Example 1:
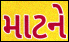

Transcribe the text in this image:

માટને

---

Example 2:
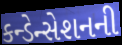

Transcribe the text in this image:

કન્ડેન્સેશનની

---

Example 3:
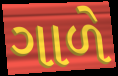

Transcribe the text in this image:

ગાળે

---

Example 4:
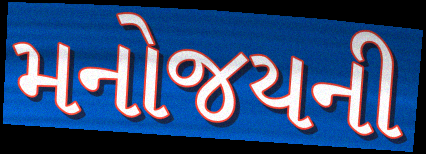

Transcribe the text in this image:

મનોજયની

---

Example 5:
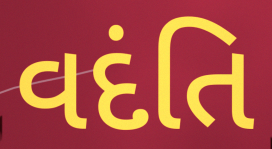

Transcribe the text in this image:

વદંતિ